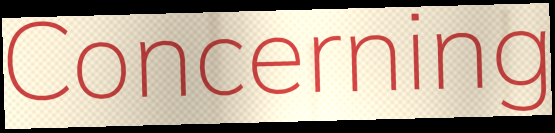
Concerning